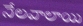
నేలవాలాయి